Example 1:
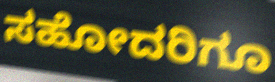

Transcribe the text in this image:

ಸಹೋದರಿಗೂ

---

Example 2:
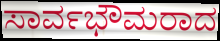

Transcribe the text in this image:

ಸಾರ್ವಭೌಮರಾದ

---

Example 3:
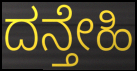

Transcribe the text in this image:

ದನ್ತೇಹಿ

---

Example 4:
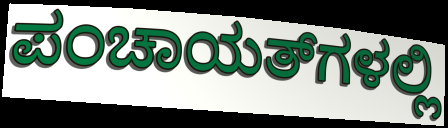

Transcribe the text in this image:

ಪಂಚಾಯತ್‌ಗಳಲ್ಲಿ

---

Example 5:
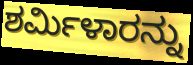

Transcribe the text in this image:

ಶರ್ಮಿಳಾರನ್ನು